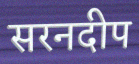
सरनदीप